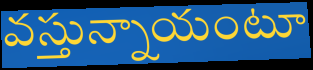
వస్తున్నాయంటూ